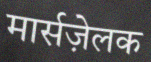
मार्सज़ेलक